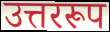
उत्तररूप